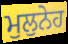
ਮੁਲੁਨੇਹ